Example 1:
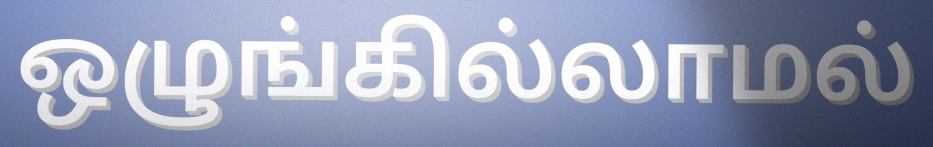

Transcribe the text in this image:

ஒழுங்கில்லாமல்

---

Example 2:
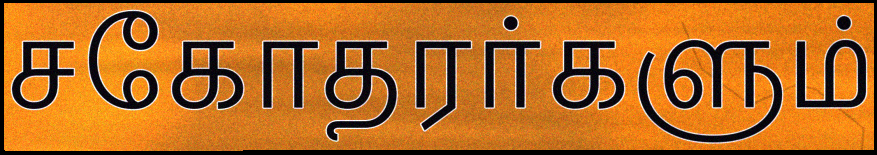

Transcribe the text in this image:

சகோதரர்களும்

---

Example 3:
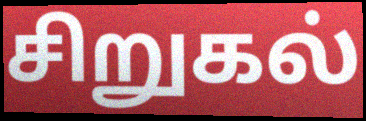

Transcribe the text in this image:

சிறுகல்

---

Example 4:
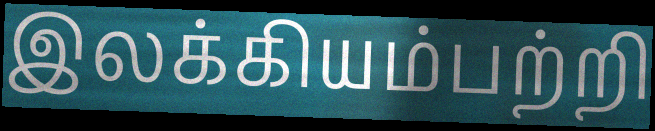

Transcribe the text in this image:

இலக்கியம்பற்றி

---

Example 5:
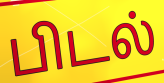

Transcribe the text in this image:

பிடல்